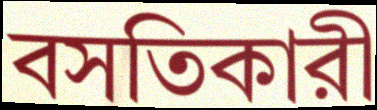
বসতিকারী